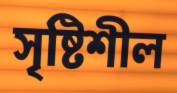
সৃষ্টিশীল